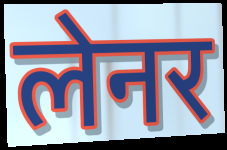
लेनर